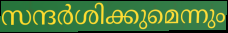
സന്ദർശിക്കുമെന്നും